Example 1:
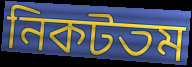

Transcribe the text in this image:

নিকটতম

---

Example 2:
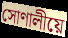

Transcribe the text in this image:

সোণালীয়ে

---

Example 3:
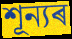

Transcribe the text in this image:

শূন্যৰ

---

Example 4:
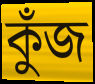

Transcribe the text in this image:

কুঁজ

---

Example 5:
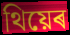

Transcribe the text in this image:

থিয়েৰ